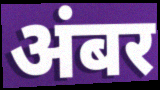
अंबर